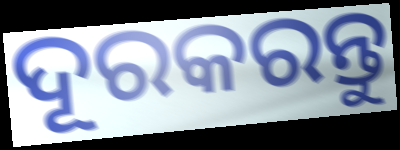
ଦୂରକରନ୍ତୁ